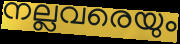
നല്ലവരെയും